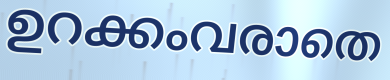
ഉറക്കംവരാതെ